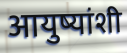
आयुष्यांशी